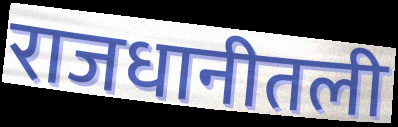
राजधानीतली